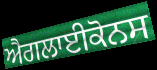
ਐਗਲਾਈਕੋਨਸ